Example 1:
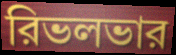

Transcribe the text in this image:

রিভলভার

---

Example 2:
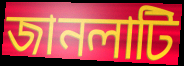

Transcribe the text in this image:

জানলাটি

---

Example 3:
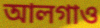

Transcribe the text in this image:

আলগাও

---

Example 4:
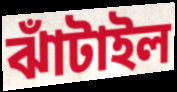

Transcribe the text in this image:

ঝাঁটাইল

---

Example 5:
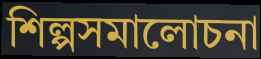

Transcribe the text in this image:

শিল্পসমালোচনা